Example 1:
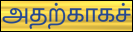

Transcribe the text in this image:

அதற்காகச்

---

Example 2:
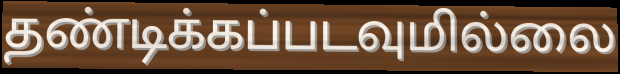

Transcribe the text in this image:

தண்டிக்கப்படவுமில்லை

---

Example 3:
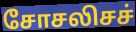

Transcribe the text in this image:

சோசலிசச்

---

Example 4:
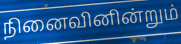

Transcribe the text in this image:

நினைவினின்றும்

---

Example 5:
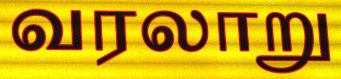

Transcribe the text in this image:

வரலாறு